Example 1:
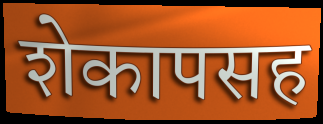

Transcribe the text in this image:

शेकापसह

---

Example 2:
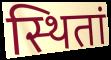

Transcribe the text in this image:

स्थितां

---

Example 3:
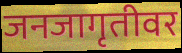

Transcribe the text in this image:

जनजागृतीवर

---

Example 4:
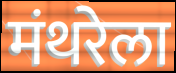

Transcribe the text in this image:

मंथरेला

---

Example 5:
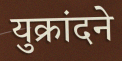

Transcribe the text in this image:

युक्रांदने